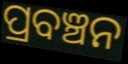
ପ୍ରବଞ୍ଚନ